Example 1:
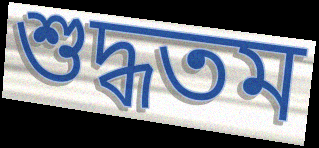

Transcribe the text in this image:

শুদ্ধতম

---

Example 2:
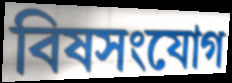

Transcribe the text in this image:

বিষসংযোগ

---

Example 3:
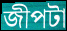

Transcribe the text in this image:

জীপটা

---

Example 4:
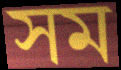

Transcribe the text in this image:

সম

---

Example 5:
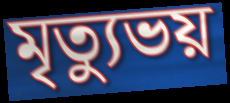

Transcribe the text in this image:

মৃত্যুভয়